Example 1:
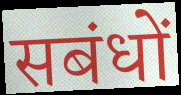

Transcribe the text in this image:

सबंधों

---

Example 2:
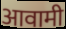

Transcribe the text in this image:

आवामी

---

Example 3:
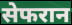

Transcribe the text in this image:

सेफरान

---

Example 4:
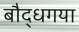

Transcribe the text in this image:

बौद्धगया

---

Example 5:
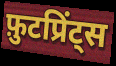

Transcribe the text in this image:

फ़ुटप्रिंट्स